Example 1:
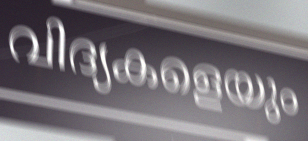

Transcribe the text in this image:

വിദ്യകളെയും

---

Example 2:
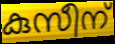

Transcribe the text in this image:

കുസീന്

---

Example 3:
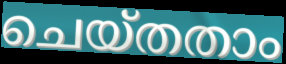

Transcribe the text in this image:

ചെയ്തതാം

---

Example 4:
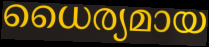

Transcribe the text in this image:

ധൈര്യമായ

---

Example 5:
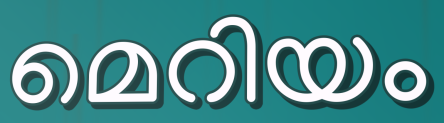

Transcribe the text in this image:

മെറിയം